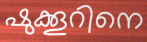
ഷുക്കൂറിനെ